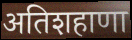
अतिशहाणा